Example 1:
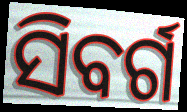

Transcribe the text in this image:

ସିବର୍ଗ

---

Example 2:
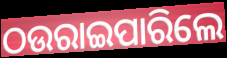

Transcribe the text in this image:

ଠଉରାଇପାରିଲେ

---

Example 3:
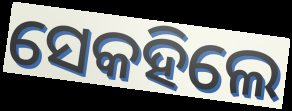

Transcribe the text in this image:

ସେକହିଲେ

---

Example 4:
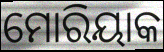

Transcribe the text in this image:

ମୋରିୟାକ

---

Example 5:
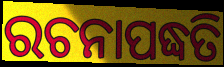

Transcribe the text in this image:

ରଚନାପଦ୍ଧତି